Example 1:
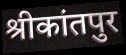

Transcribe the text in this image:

श्रीकांतपुर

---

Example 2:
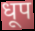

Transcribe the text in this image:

धूप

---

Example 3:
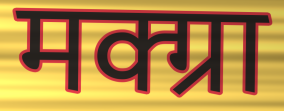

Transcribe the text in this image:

मक्ग्रा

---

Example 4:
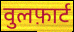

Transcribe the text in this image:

वुलफ़ार्ट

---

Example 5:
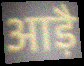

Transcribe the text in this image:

आड़ै